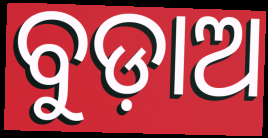
ବୁଡ଼ାଅ